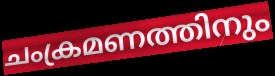
ചംക്രമണത്തിനും